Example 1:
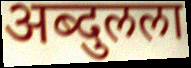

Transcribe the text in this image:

अब्दुलला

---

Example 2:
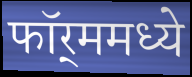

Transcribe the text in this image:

फॉर्ममध्ये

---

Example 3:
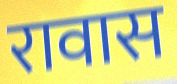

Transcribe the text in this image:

रावास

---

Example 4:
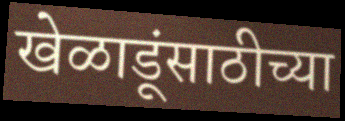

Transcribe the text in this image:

खेळाडूंसाठीच्या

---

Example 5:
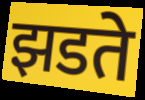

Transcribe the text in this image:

झडते